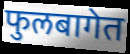
फुलबागेत